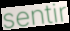
sentir